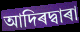
আদিৰদ্বাৰা